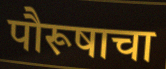
पौरूषाचा